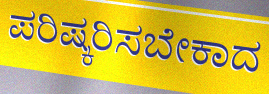
ಪರಿಷ್ಕರಿಸಬೇಕಾದ